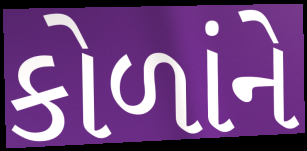
કોળાંને